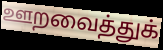
ஊறவைத்துக்